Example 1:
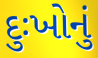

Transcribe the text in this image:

દુઃખોનું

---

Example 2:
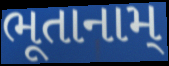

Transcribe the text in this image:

ભૂતાનામ્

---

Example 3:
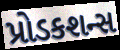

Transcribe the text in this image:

પ્રોડકશન્સ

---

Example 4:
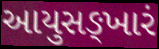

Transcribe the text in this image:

આયુસઙ્ખારં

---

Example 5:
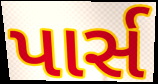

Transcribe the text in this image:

પાર્સ